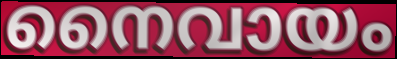
നൈവായം